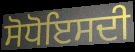
ਸੋਧੋਇਸਦੀ